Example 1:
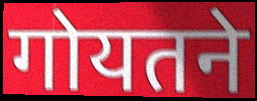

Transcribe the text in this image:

गोयतने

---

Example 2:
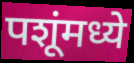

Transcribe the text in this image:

पशूंमध्ये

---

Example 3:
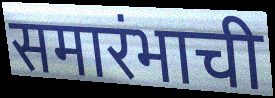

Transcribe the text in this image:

समारंभाची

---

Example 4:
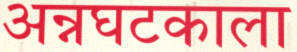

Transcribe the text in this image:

अन्नघटकाला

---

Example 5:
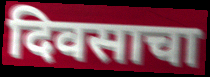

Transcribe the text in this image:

दिवसाचा